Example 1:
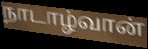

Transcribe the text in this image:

நாடாழ்வான்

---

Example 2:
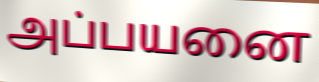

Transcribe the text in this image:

அப்பயனை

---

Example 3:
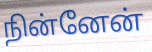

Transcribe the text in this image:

நின்னேன்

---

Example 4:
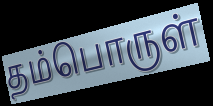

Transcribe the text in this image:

தம்பொருள்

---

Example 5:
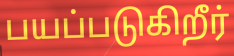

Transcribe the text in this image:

பயப்படுகிறீர்